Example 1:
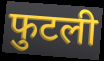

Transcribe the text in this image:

फुटली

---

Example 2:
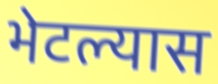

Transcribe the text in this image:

भेटल्यास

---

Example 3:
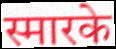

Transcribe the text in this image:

स्मारके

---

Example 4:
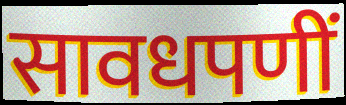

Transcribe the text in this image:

सावधपणीं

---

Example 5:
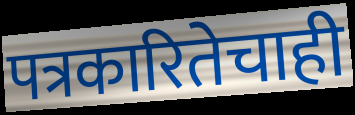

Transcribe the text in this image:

पत्रकारितेचाही